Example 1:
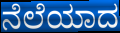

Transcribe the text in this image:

ನೆಲೆಯಾದ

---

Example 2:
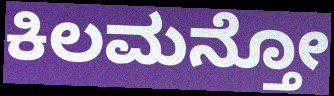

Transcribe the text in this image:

ಕಿಲಮನ್ತೋ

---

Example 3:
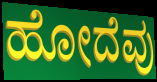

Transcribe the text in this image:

ಹೋದೆವು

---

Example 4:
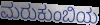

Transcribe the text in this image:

ಮರುಕುಂಬಿಯ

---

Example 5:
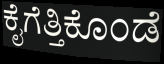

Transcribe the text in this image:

ಕೈಗೆತ್ತಿಕೊಂಡೆ